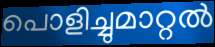
പൊളിച്ചുമാറ്റൽ